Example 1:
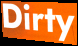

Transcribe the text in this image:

Dirty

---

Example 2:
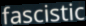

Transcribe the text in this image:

fascistic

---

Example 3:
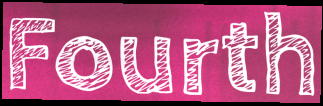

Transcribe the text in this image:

Fourth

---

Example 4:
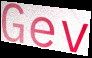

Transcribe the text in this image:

Gev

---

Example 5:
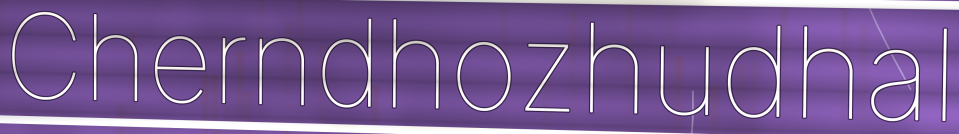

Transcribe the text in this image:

Cherndhozhudhal